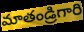
మాతండ్రిగారి